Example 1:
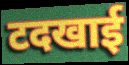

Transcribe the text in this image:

टदखाई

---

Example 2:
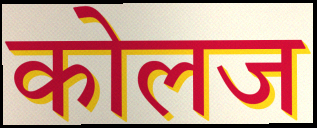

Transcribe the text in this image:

कोलज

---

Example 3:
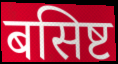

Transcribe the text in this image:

बसिष्ट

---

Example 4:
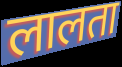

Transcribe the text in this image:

लालता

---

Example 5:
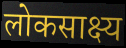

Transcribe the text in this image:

लोकसाक्ष्य